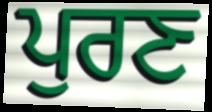
ਪੁਰਣ